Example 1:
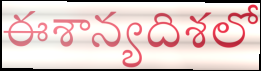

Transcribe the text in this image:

ఈశాన్యదిశలో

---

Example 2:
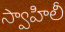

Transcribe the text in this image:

స్వాహిలీ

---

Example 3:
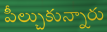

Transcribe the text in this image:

పీల్చుకున్నారు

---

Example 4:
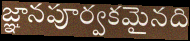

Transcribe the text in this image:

జ్ఞానపూర్వకమైనది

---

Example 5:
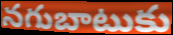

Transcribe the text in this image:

నగుబాటుకు